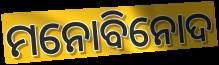
ମନୋବିନୋଦ